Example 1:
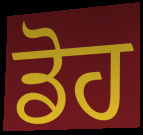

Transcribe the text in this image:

ਡੋਹ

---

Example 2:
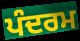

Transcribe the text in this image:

ਪੰਦਰਮ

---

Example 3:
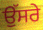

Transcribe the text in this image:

ਉੱਸਰੇ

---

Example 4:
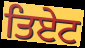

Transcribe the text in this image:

ਤਿਏਟ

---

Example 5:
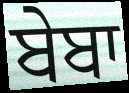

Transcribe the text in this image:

ਬੇਬਾ